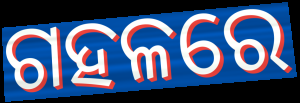
ଗହଳରେ